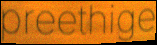
preethige